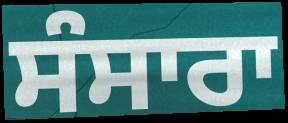
ਸੰਸਾਰਾ